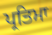
ਪ੍ਰਤਿਮਾ